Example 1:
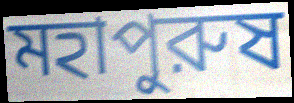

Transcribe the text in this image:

মহাপুৰুষ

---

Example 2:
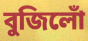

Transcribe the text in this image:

বুজিলোঁ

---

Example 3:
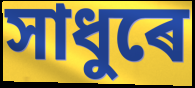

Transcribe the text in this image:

সাধুৰে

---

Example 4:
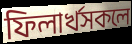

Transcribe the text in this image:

ফিলাৰ্খসকলে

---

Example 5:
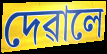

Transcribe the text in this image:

দেৱালে